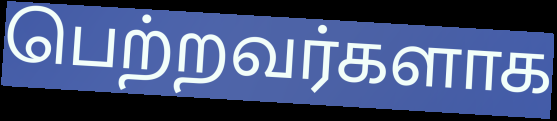
பெற்றவர்களாக